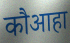
कौआहा